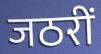
जठरीं